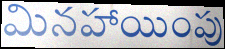
మినహాయింపు